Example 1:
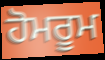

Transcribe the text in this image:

ਹੋਮਰੂਮ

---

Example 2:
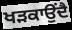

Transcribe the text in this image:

ਖੜਕਾਉਂਦੈ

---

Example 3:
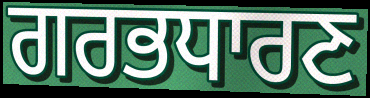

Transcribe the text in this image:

ਗਰਭਧਾਰਣ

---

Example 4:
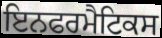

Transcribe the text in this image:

ਇਨਫਰਮੈਟਿਕਸ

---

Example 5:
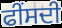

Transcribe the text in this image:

ਫੀਂਸਦੀ